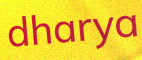
dharya